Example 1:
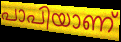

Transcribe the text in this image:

പാപിയാണ്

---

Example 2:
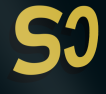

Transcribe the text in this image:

ടാ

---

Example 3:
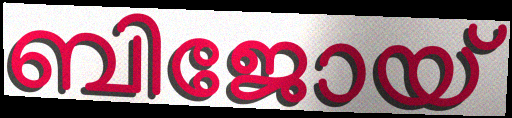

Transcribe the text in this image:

ബിജോയ്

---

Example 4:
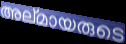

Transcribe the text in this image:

അല്മായരുടെ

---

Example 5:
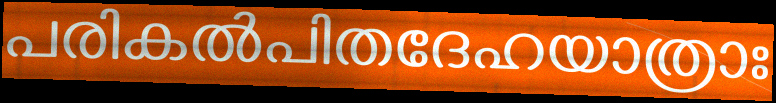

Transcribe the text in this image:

പരികൽപിതദേഹയാത്രാഃ